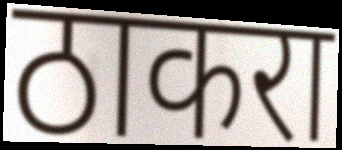
ठाकरा